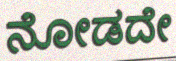
ನೋಡದೇ